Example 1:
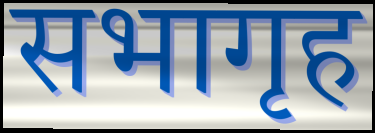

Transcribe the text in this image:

सभागृह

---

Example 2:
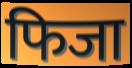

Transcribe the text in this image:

फिजा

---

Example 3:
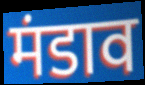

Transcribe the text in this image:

मंडाव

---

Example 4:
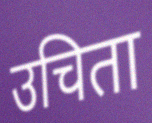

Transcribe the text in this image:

उचिता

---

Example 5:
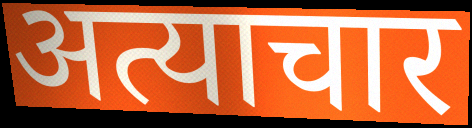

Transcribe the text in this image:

अत्याचार